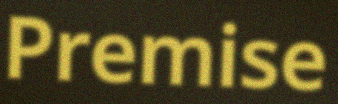
Premise